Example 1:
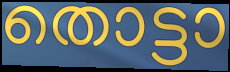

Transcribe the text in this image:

തൊട്ടാ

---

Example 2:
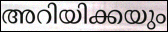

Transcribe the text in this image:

അറിയിക്കയും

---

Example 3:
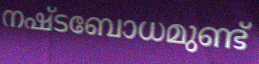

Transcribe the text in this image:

നഷ്ടബോധമുണ്ട്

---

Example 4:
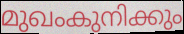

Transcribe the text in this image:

മുഖംകുനിക്കും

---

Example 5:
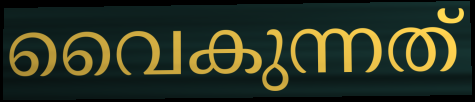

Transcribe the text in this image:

വൈകുന്നത്